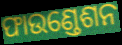
ଫାଉଣ୍ଡେଶନ